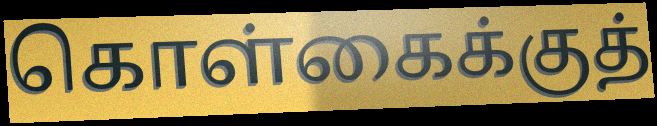
கொள்கைக்குத்